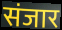
संजार